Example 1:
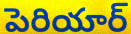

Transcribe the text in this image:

పెరియార్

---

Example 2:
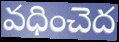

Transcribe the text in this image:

వధించెద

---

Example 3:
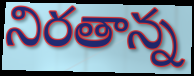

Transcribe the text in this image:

నిరతాన్న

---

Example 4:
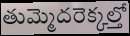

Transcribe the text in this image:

తుమ్మెదరెక్కల్తో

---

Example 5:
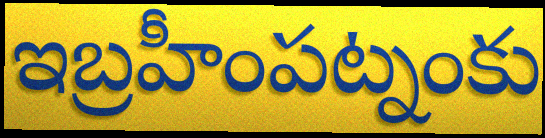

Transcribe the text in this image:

ఇబ్రహీంపట్నంకు